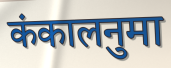
कंकालनुमा